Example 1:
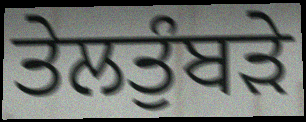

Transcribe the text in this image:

ਤੇਲਤੁੰਬੜੇ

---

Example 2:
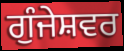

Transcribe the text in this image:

ਗੁੰਜੇਸ਼ਵਰ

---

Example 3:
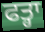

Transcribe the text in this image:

ਫਤ੍ਹਾ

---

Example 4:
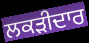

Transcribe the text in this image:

ਲਕੜੀਦਾਰ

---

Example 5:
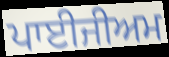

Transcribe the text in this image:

ਪਾਈਜੀਅਮ